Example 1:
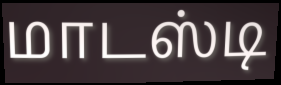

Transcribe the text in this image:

மாடஸ்டி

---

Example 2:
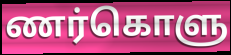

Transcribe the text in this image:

ணர்கொளு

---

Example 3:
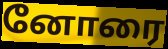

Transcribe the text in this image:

னோரை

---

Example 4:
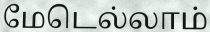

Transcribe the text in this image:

மேடெல்லாம்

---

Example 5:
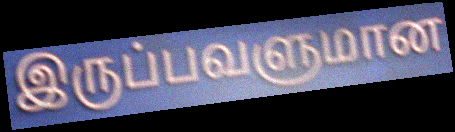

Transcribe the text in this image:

இருப்பவளுமான